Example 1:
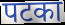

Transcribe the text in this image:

पटका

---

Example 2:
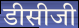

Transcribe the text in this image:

डीसीजी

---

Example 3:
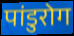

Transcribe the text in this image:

पांडुरोग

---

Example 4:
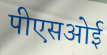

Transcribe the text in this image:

पीएसओई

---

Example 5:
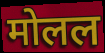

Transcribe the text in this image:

मोलल